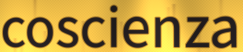
coscienza